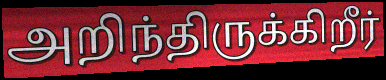
அறிந்திருக்கிறீர்